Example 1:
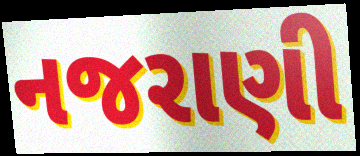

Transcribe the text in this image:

નજરાણી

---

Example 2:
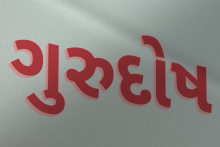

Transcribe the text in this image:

ગુરુદોષ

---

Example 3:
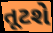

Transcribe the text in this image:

તૂટશે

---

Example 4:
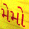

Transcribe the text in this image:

મેમો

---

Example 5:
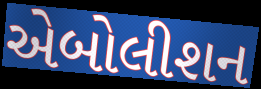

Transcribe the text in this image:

એબોલીશન